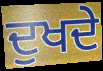
ਦੁਖਦੇ